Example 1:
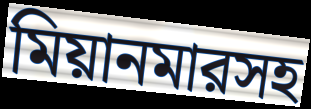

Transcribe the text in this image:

মিয়ানমারসহ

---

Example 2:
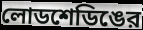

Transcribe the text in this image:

লোডশেডিঙের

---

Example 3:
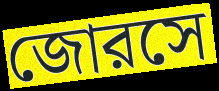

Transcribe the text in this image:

জোরসে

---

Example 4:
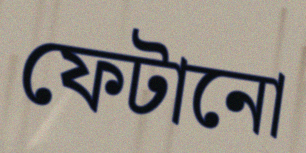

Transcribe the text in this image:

ফেটানো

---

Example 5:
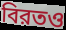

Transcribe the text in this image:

বিরতও